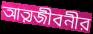
আত্মজীবনীর